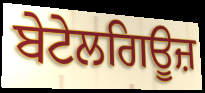
ਬੇਟੇਲਗਿਊਜ਼